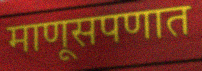
माणूसपणात